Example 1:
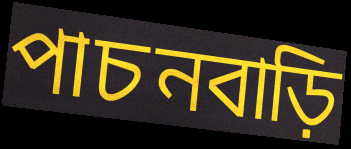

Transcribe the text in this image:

পাচনবাড়ি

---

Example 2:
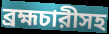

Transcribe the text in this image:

ব্রহ্মচারীসহ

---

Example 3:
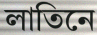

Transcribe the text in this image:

লাতিনে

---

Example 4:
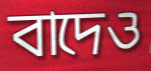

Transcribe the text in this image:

বাদেও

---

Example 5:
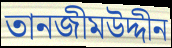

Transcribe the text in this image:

তানজীমউদ্দীন